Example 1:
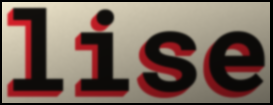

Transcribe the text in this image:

lise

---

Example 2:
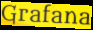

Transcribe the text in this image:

Grafana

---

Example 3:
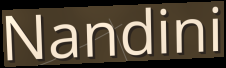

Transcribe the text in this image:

Nandini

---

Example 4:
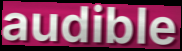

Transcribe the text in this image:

audible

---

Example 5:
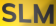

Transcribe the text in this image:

SLM